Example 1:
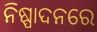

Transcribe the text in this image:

ନିଷ୍ପାଦନରେ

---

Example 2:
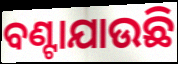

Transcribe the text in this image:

ବଣ୍ଟାଯାଉଛି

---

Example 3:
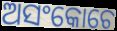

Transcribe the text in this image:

ଅସଂକୋଚେ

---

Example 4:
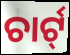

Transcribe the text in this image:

ଚାର୍ଟ୍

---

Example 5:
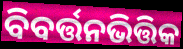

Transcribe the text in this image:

ବିବର୍ତ୍ତନଭିତ୍ତିକ